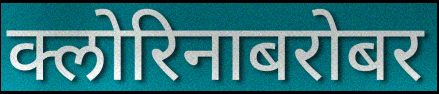
क्लोरिनाबरोबर